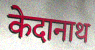
केदानाथ